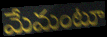
మేమంటూ